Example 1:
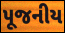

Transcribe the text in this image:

પૂજનીય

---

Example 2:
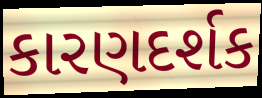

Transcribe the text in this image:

કારણદર્શક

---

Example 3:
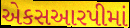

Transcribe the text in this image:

એકસઆરપીમાં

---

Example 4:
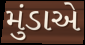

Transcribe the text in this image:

મુંડાએ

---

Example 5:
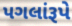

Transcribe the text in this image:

પગલાંરૂપે